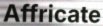
Affricate